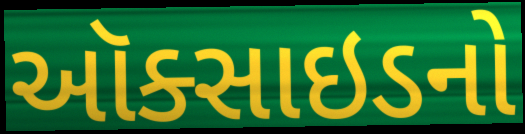
ઑક્સાઇડનો